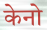
केनो